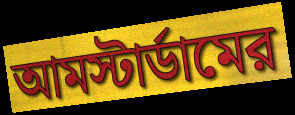
আমস্টার্ডামের